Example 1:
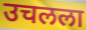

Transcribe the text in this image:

उचलला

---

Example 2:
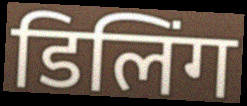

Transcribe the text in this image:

डिलिंग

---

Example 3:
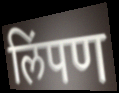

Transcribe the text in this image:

लिंपण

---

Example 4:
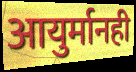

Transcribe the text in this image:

आयुर्मानही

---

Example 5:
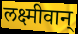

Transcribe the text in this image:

लक्ष्मीवान्